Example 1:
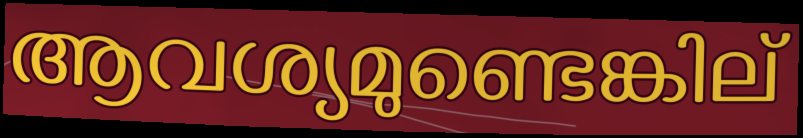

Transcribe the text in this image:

ആവശ്യമുണ്ടെങ്കില്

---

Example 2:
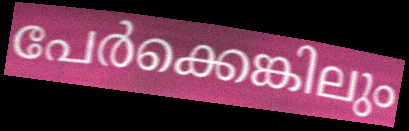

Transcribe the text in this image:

പേർക്കെങ്കിലും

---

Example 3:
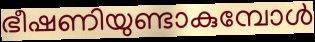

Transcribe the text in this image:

ഭീഷണിയുണ്ടാകുമ്പോൾ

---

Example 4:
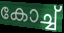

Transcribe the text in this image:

കോച്ച്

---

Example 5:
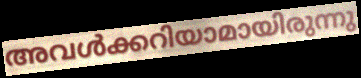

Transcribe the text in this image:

അവൾക്കറിയാമായിരുന്നു